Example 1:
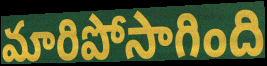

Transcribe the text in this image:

మారిపోసాగింది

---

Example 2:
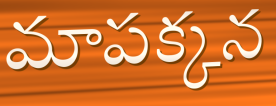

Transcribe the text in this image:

మాపక్కన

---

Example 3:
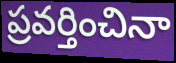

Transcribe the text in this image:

ప్రవర్తించినా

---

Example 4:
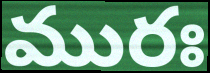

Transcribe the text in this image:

మురః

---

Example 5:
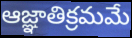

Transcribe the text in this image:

ఆజ్ఞాతిక్రమమే